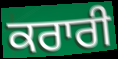
ਕਰਾਰੀ